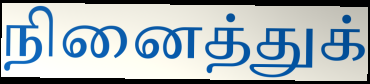
நினைத்துக்